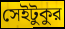
সেইটুকুর